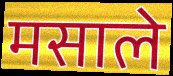
मसाले